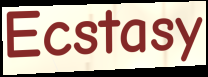
Ecstasy